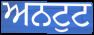
ਅਨਟੁਟ